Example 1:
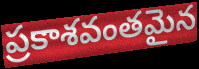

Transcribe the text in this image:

ప్రకాశవంతమైన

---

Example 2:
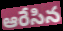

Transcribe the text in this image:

ఆరేసిన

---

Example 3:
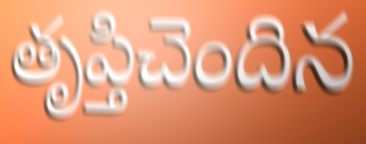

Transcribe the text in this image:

తృప్తిచెందిన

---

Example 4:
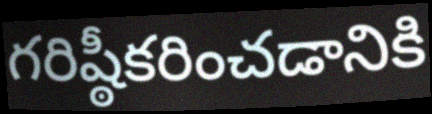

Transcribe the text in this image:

గరిష్ఠీకరించడానికి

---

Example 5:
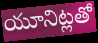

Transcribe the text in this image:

యూనిట్లతో